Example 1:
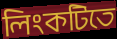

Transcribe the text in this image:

লিংকটিতে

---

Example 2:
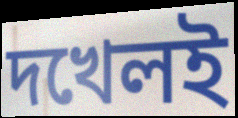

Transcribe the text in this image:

দখেলই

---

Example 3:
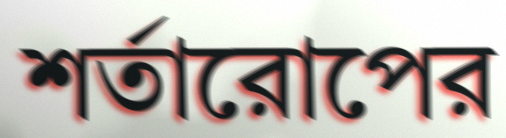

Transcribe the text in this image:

শর্তারোপের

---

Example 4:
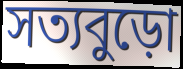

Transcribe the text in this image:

সত্যবুড়ো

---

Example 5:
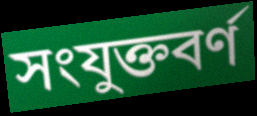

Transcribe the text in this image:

সংযুক্তবর্ণ